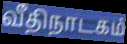
வீதிநாடகம்